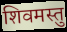
शिवमस्तु